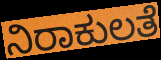
ನಿರಾಕುಲತೆ